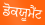
ਡੋਕਯੂਮੈਂਟ